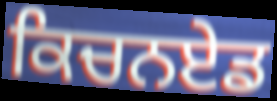
ਕਿਚਨਏਡ